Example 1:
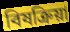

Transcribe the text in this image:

বিষক্ৰিয়া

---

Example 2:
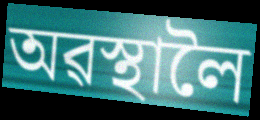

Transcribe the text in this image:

অৱস্থালৈ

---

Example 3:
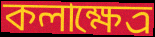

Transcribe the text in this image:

কলাক্ষেত্ৰ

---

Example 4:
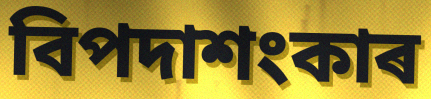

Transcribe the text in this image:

বিপদাশংকাৰ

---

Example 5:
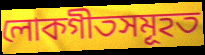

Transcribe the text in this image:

লোকগীতসমূহত